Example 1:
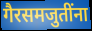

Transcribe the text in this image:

गैरसमजुतींना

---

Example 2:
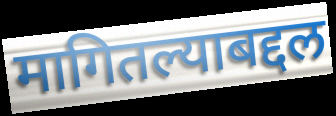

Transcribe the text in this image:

मागितल्याबद्दल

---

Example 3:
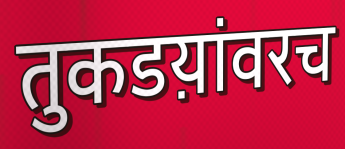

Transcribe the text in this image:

तुकडय़ांवरच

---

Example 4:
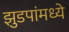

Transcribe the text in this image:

झुडपांमध्ये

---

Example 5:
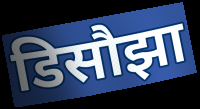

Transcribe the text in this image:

डिसौझा